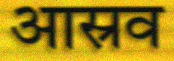
आस्रव